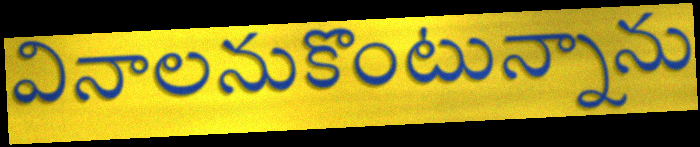
వినాలనుకొంటున్నాను